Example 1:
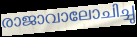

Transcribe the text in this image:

രാജാവാലോചിച്ചു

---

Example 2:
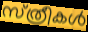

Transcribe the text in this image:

സ്‌ത്രീകൾ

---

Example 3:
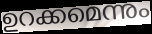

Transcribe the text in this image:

ഉറക്കമെന്നും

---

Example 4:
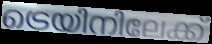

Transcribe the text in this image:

ട്രെയിനിലേക്ക്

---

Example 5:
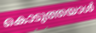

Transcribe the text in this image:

കൊടുത്തയാൾ